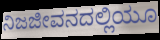
ನಿಜಜೀವನದಲ್ಲಿಯೂ